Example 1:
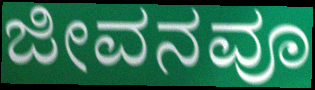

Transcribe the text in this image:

ಜೀವನವೂ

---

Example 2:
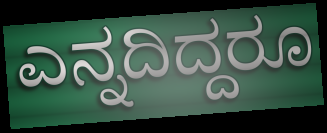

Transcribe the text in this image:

ಎನ್ನದಿದ್ದರೂ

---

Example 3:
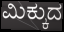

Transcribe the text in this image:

ಮಿಕ್ಕುದ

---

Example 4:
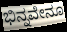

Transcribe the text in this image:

ಭಿನ್ನವೇನೂ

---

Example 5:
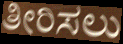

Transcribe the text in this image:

ತೀರಿಸಲು